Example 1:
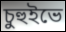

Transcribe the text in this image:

চুহুইভে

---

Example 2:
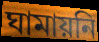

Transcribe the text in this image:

ঘামায়নি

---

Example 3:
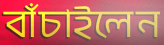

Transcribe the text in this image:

বাঁচাইলেন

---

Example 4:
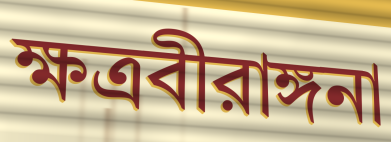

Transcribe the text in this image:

ক্ষত্রবীরাঙ্গনা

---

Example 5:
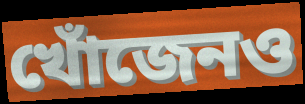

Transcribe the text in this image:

খোঁজেনও